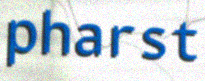
pharst